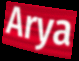
Arya